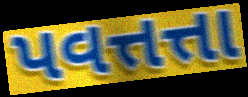
પવત્તત્તા